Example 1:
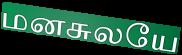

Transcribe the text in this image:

மனசுலயே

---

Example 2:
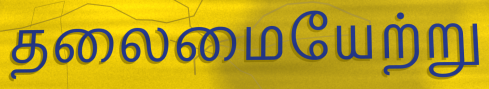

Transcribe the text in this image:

தலைமையேற்று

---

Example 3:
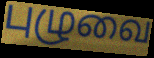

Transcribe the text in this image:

புழுவை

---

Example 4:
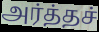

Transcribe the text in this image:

அர்த்தச்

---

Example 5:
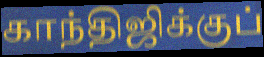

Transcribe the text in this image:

காந்திஜிக்குப்